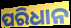
ପରିଧାନ